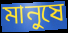
মানুষে